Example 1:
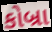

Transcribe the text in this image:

કોબ્રા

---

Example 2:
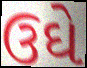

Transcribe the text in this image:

ઉઘે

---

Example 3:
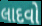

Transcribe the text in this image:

લાદવો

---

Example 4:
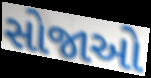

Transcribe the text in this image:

સોજાઓ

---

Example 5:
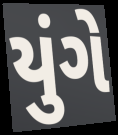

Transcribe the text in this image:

યુંગે